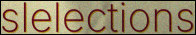
slelections